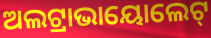
ଅଲଟ୍ରାଭାୟୋଲେଟ୍